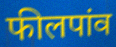
फीलपांव